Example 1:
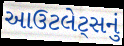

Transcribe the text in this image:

આઉટલેટ્સનું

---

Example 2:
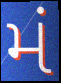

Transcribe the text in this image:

મં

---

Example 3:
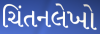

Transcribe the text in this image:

ચિંતનલેખો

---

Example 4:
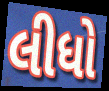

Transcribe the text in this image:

લીધો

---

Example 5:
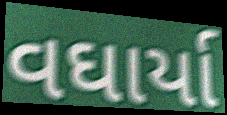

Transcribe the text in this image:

વઘાર્યા